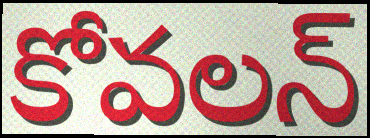
కోవలన్